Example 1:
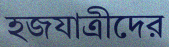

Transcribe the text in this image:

হজযাত্রীদের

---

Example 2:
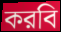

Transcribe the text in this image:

করবি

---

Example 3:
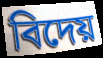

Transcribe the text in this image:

বিদেয়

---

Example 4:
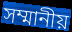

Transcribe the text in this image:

সম্মানীয়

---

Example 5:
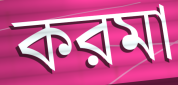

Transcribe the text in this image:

করমা